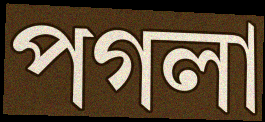
পগলা